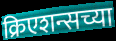
क्रिएशन्सच्या